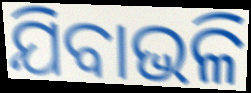
ଯିବାଭଳି